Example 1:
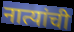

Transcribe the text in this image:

नात्यांची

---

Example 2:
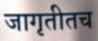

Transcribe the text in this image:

जागृतीतच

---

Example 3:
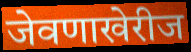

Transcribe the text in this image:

जेवणाखेरीज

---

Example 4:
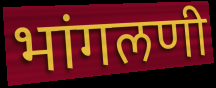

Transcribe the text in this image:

भांगलणी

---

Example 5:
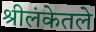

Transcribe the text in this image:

श्रीलंकेतले